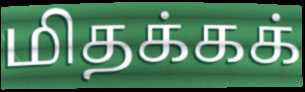
மிதக்கக்